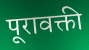
पूरावक्ती